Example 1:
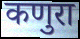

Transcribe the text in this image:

कणुरा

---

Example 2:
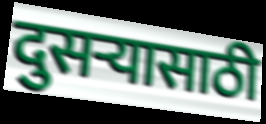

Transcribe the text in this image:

दुसऱ्यासाठी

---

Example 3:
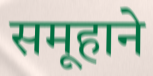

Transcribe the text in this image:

समूहाने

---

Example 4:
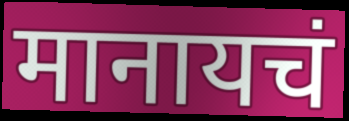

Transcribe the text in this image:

मानायचं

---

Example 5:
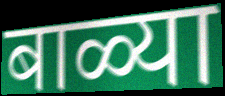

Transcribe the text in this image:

बाळ्या